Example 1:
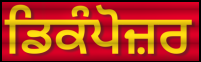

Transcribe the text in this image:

ਡਿਕੰਪੋਜ਼ਰ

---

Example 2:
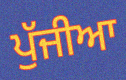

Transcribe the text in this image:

ਪੁੱਜੀਆ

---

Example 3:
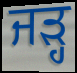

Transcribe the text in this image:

ਜੜ੍ਹ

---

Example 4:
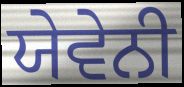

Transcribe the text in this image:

ਯੇਵੇਨੀ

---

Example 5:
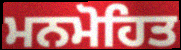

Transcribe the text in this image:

ਮਨਮੋਹਿਤ